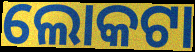
ଲୋକଟା